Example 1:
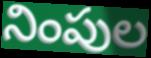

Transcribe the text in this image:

నింపుల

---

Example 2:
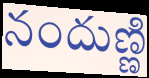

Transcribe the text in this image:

నందుణ్ణి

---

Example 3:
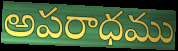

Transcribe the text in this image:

అపరాధము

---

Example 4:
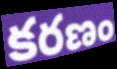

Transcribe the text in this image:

కరణం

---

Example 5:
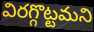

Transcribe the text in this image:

విరగ్గొట్టమని